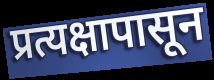
प्रत्यक्षापासून